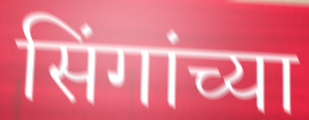
सिंगांच्या